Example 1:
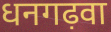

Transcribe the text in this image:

धनगढ़वा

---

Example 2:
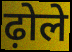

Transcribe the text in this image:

ढ़ोले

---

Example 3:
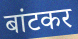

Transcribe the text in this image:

बांटकर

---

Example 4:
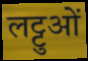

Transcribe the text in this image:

लट्टुओं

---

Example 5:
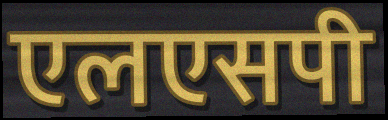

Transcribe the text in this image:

एलएसपी